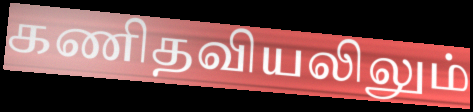
கணிதவியலிலும்